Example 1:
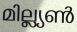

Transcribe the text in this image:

മില്ല്യൺ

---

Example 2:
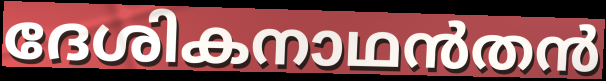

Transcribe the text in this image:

ദേശികനാഥൻതൻ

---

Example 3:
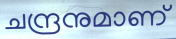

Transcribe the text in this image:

ചന്ദ്രനുമാണ്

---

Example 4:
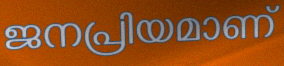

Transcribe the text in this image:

ജനപ്രിയമാണ്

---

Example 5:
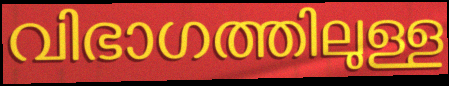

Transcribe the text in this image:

വിഭാഗത്തിലുള്ള